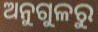
ଅନୁଗୁଳରୁ